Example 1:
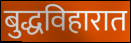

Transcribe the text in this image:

बुद्धविहारात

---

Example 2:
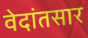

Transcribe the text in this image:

वेदांतसार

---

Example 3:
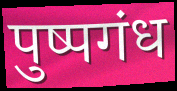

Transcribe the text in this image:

पुष्पगंध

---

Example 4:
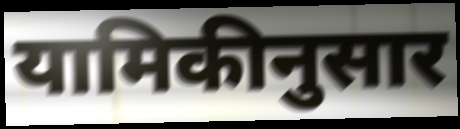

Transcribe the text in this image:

यामिकीनुसार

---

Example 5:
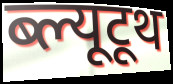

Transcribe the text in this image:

ब्ल्यूटूथ